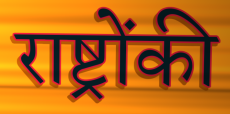
राष्ट्रोंकी